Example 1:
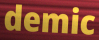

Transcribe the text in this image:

demic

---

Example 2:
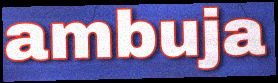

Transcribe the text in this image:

ambuja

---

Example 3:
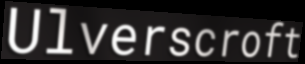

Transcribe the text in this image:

Ulverscroft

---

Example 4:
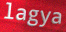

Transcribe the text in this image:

lagya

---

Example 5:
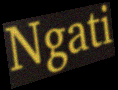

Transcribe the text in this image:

Ngati